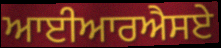
ਆਈਆਰਐਸਏ